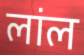
लांल